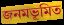
জনমভূমিত